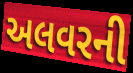
અલવરની